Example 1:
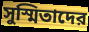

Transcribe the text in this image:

সুস্মিতাদের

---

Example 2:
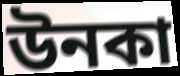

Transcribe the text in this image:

উনকা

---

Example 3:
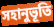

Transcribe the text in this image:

সহানুভূতি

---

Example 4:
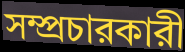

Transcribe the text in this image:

সম্প্রচারকারী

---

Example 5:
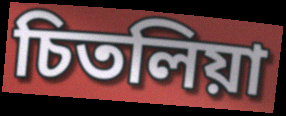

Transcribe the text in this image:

চিতলিয়া